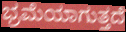
ಭ್ರಮೆಯಾಗುತ್ತದೆ